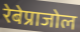
रेबेप्राजोल